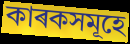
কাৰকসমূহে